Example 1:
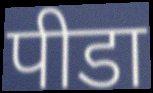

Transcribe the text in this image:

पीडा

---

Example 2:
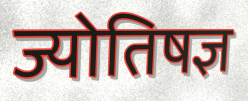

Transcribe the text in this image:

ज्योतिषज्ञ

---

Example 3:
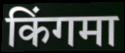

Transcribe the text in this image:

किंगमा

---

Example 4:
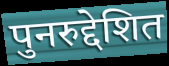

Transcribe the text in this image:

पुनरुद्देशित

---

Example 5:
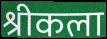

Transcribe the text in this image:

श्रीकला